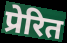
प्रेरित